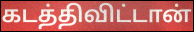
கடத்திவிட்டான்